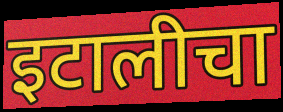
इटालीचा